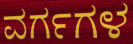
ವರ್ಗಗಳ